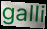
galli